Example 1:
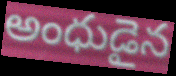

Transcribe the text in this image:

అంధుడైన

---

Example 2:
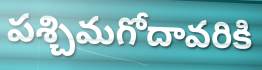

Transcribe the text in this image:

పశ్చిమగోదావరికి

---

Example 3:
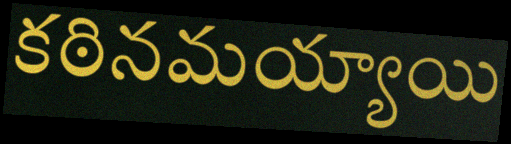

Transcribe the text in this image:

కఠినమయ్యాయి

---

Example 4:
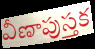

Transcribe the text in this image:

వీణాపుస్తక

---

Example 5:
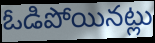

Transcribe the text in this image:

ఓడిపోయినట్లు